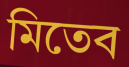
মিতেব